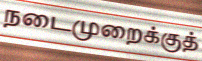
நடைமுறைக்குத்